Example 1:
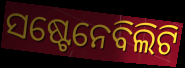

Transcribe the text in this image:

ସଷ୍ଟେନେବିଲିଟି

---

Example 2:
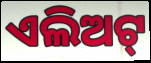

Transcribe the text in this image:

ଏଲିଅଟ୍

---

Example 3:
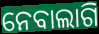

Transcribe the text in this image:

ନେବାଲାଗି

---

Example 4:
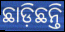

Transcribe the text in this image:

ଛାଡ଼ିଛନ୍ତି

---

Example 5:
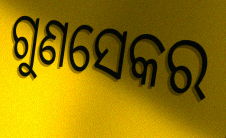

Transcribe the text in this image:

ଗୁଣସେକର